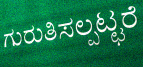
ಗುರುತಿಸಲ್ಪಟ್ಟರೆ